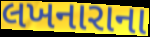
લખનારાના